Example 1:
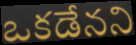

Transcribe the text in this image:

ఒకడేనని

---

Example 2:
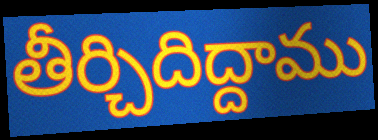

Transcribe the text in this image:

తీర్చిదిద్దాము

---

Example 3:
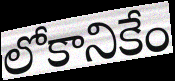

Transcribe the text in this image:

లోకానికేం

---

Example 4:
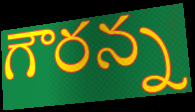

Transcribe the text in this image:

గౌరన్న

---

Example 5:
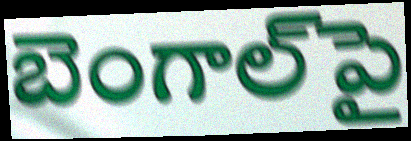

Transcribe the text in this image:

బెంగాల్‌పై